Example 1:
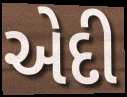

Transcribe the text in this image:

એદી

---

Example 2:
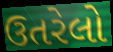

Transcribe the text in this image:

ઉતરેલો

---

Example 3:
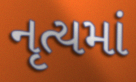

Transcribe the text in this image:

નૃત્યમાં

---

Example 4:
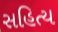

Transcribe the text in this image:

સહિત્ય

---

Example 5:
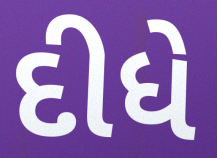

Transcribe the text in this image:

દીધે